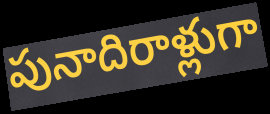
పునాదిరాళ్లుగా